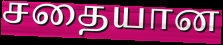
சதையான